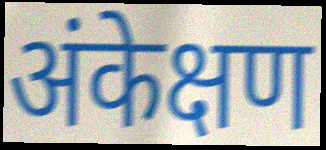
अंकेक्षण